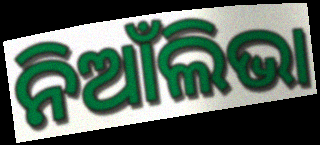
ନିଆଁଲିଭା